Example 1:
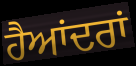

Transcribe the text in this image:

ਹੈਆਂਦਰਾਂ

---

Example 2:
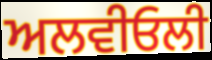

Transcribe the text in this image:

ਅਲਵੀਓਲੀ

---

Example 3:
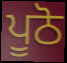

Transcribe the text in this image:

ਪੂਠੋ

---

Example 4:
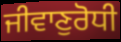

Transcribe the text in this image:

ਜੀਵਾਣੁਰੋਧੀ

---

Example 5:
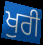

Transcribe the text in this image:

ਖੁਰੀ